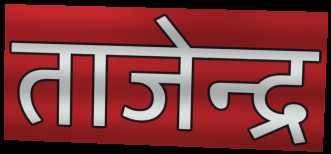
ताजेन्द्र